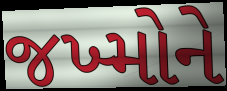
જખ્મોને